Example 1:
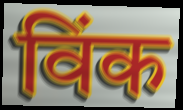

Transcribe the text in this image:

विंक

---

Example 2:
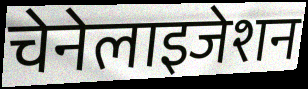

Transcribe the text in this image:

चेनेलाइजेशन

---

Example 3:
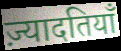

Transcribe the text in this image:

ज़्यादतियाँ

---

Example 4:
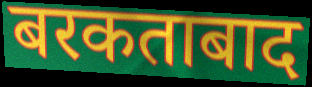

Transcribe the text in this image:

बरकताबाद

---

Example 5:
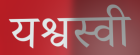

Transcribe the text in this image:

यश्वस्वी